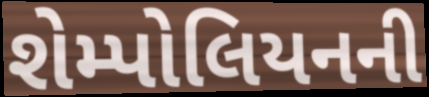
શેમ્પોલિયનની